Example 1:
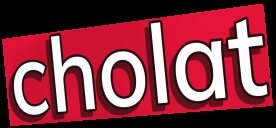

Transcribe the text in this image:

cholat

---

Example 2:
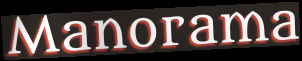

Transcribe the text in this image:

Manorama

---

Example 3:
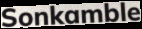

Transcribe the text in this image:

Sonkamble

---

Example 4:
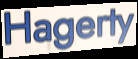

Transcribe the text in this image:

Hagerty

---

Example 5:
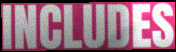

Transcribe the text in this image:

INCLUDES